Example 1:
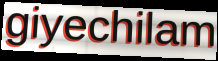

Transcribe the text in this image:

giyechilam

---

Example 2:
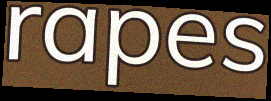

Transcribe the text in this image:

rapes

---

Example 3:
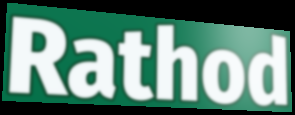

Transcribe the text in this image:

Rathod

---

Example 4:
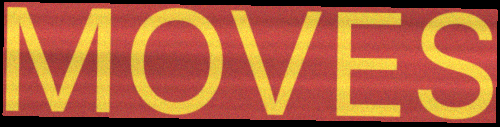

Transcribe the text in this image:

MOVES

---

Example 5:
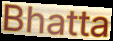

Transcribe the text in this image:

Bhatta